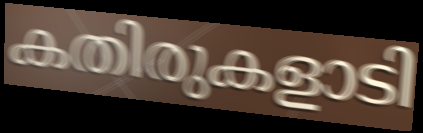
കതിരുകളാടി